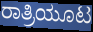
ರಾತ್ರಿಯೂಟ